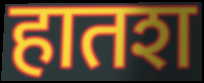
हातश